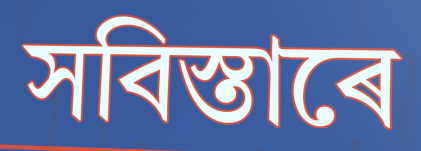
সবিস্তাৰে